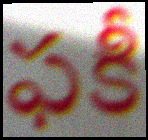
ఫకీ